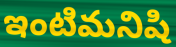
ఇంటిమనిషి